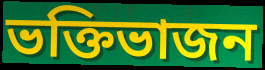
ভক্তিভাজন